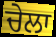
ਚੇਲਾ